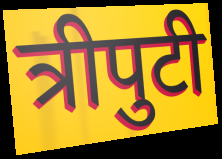
त्रीपुटी